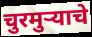
चुरमुऱ्याचे